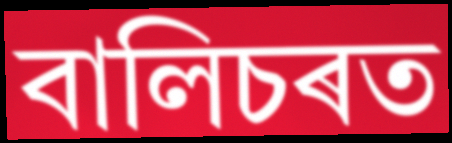
বালিচৰত